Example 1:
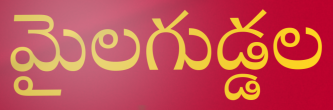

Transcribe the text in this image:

మైలగుడ్డల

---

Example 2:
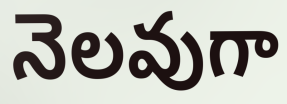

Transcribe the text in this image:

నెలవుగా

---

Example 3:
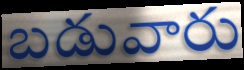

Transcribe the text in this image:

బడువారు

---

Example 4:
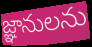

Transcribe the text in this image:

జ్ఞానులను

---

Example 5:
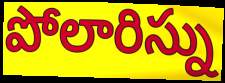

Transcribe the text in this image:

పోలారిస్ను